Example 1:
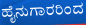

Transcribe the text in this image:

ಹೈನುಗಾರರಿಂದ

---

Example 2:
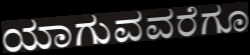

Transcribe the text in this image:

ಯಾಗುವವರೆಗೂ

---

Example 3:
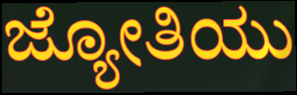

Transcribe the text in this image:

ಜ್ಯೋತಿಯು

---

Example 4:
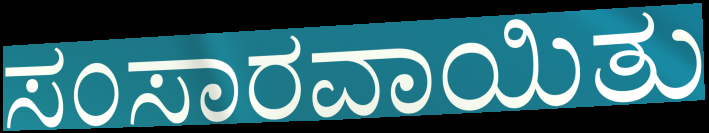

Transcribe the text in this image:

ಸಂಸಾರವಾಯಿತು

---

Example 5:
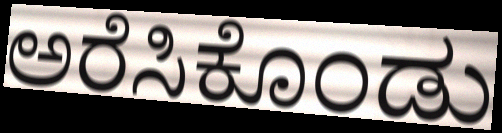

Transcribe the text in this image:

ಅರೆಸಿಕೊಂಡು